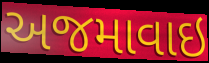
અજમાવાઇ